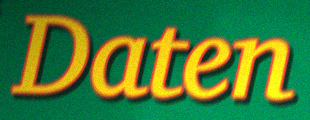
Daten